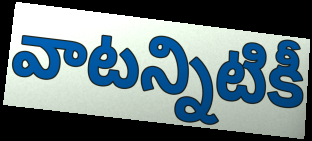
వాటన్నిటికీ